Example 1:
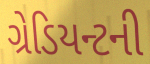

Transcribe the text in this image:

ગ્રેડિયન્ટની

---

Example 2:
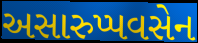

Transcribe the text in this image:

અસારુપ્પવસેન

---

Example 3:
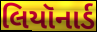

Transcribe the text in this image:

લિયૉનાર્ડ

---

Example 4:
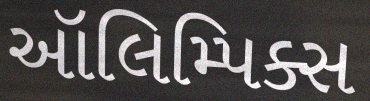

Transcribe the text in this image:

ઑલિમ્પિક્સ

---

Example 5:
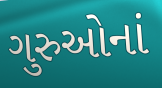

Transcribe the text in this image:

ગુરુઓનાં